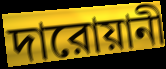
দারোয়ানী